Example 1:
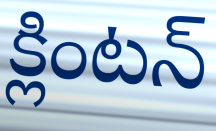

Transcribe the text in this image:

క్లింటన్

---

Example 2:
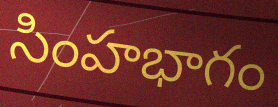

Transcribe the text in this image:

సింహభాగం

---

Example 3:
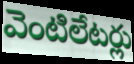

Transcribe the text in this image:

వెంటిలేటర్లు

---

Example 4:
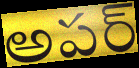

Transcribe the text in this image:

అపర్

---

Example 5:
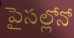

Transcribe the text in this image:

పైసల్లోనో